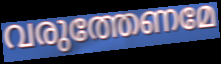
വരുത്തേണമേ